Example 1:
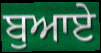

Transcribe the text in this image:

ਬੁਆਏ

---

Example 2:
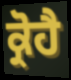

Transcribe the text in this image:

ਕ੍ਰੋਹੈ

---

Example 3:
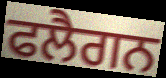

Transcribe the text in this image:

ਫਲੈਗਨ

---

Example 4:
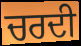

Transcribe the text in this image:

ਚਰਦੀ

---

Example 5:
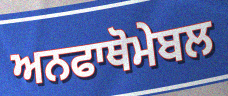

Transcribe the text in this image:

ਅਨਫਾਥੋਮੇਬਲ